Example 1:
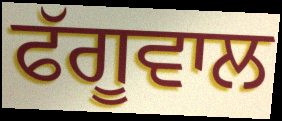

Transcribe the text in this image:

ਫੱਗੂਵਾਲ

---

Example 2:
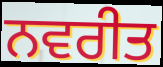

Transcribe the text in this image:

ਨਵਰੀਤ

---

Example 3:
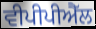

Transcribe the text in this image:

ਵੀਪੀਪੀਐੱਲ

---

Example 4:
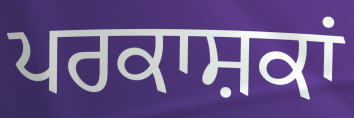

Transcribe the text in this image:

ਪਰਕਾਸ਼ਕਾਂ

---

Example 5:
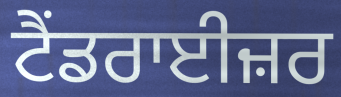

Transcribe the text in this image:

ਟੈਂਡਰਾਈਜ਼ਰ